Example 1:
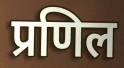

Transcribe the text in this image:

प्रणिल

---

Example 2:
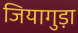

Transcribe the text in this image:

जियागुड़ा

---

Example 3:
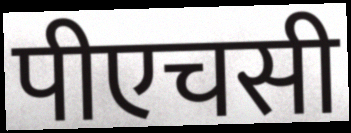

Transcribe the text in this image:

पीएचसी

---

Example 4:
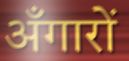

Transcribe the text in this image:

अँगारों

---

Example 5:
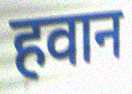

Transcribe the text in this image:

हवान